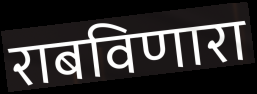
राबविणारा